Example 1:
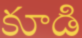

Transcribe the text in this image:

కూడి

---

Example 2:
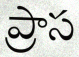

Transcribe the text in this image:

ప్రాస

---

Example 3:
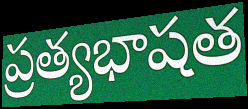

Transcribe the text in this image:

ప్రత్యభాషత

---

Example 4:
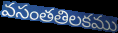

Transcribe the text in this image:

వసంతతిలకము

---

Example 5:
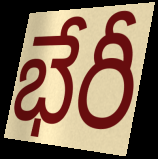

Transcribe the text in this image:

భేరీ